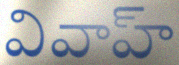
వివాహ్